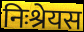
निःश्रेयस